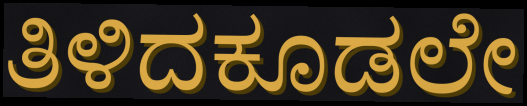
ತಿಳಿದಕೂಡಲೇ